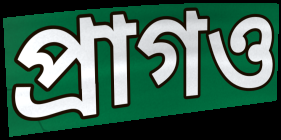
প্রাগও